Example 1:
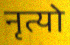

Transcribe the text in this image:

नृत्यो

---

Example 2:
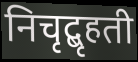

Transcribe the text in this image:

निचृद्बृहती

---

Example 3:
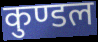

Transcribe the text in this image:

कुण्डल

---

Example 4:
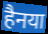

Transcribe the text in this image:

हैनया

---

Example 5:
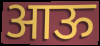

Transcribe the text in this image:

आऊ